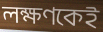
লক্ষণকেই